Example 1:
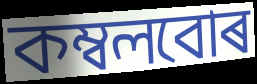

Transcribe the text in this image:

কম্বলবোৰ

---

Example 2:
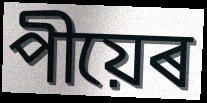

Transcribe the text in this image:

পীয়েৰ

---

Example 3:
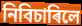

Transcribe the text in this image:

নিবিচাৰিলে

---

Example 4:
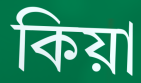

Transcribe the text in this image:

কিয়া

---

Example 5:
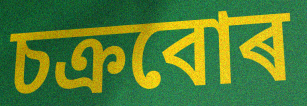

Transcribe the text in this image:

চক্ৰবোৰ